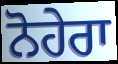
ਨੋਹੇਰਾ